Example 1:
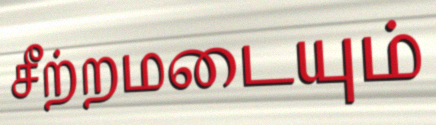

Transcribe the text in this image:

சீற்றமடையும்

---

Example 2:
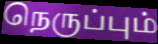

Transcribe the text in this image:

நெருப்பும்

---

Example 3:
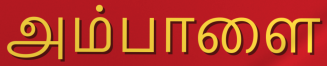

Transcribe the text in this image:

அம்பாளை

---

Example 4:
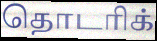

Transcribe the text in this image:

தொடரிக்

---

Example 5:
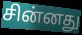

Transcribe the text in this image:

சின்னது